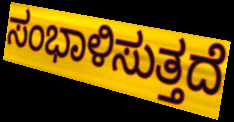
ಸಂಭಾಳಿಸುತ್ತದೆ